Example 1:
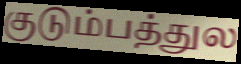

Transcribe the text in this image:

குடும்பத்துல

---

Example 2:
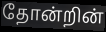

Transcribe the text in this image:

தோன்றின்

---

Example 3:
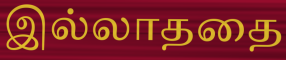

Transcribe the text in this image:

இல்லாததை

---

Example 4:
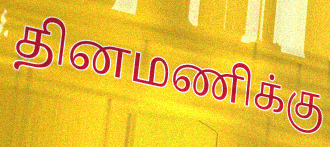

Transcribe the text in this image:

தினமணிக்கு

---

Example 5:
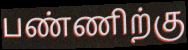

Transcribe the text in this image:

பண்ணிற்கு